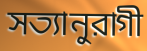
সত্যানুরাগী